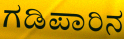
ಗಡಿಪಾರಿನ